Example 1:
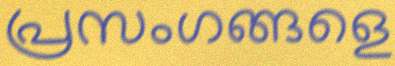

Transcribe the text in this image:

പ്രസംഗങ്ങളെ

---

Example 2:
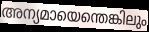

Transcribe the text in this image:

അന്യമായെന്തെങ്കിലും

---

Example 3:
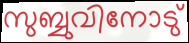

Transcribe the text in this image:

സുബ്ബുവിനോടു്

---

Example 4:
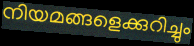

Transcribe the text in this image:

നിയമങ്ങളെക്കുറിച്ചും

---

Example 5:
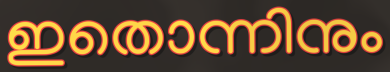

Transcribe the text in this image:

ഇതൊന്നിനും